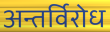
अन्तर्विरोध